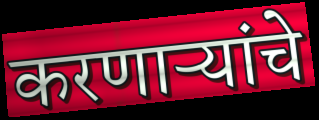
करणाऱ्यांचे